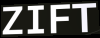
ZIFT